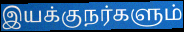
இயக்குநர்களும்